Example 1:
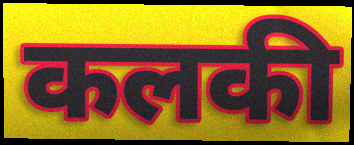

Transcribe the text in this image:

कलकी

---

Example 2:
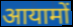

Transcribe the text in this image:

आयामों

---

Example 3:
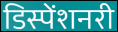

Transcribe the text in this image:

डिस्पेंशनरी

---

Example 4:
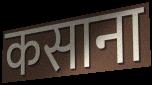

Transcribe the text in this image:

कसाना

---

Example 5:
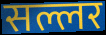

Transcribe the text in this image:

सल्लर